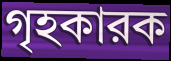
গৃহকারক